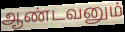
ஆண்டவனும்